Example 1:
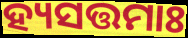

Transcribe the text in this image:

ହ୍ୟସତ୍ତମାଃ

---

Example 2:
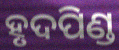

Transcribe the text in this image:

ହୃଦପିଣ୍ଡ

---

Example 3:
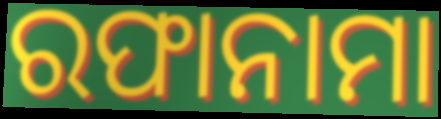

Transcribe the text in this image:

ରଫାନାମା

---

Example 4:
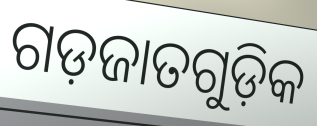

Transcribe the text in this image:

ଗଡ଼ଜାତଗୁଡ଼ିକ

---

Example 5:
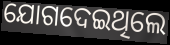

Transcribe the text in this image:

ଯୋଗଦେଇଥିଲେ